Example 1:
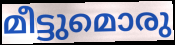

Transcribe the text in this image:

മീട്ടുമൊരു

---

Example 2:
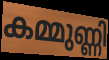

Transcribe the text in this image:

കമ്മുണ്ണി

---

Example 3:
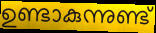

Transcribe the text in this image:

ഉണ്ടാകുന്നുണ്ട്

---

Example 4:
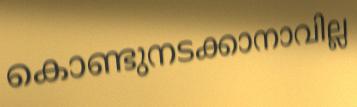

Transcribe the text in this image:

കൊണ്ടുനടക്കാനാവില്ല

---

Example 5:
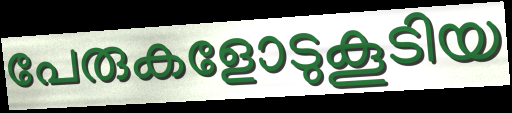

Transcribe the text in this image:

പേരുകളോടുകൂടിയ